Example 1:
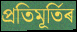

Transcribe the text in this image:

প্ৰতিমূৰ্তিৰ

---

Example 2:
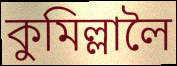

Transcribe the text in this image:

কুমিল্লালৈ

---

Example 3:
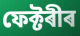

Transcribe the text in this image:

ফেক্টৰীৰ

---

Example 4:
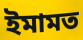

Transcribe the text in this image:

ইমামত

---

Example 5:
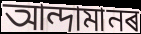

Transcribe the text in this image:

আন্দামানৰ